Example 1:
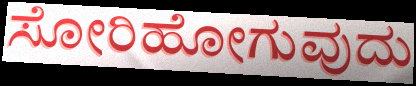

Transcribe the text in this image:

ಸೋರಿಹೋಗುವುದು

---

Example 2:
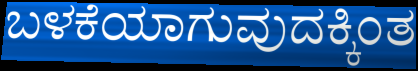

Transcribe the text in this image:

ಬಳಕೆಯಾಗುವುದಕ್ಕಿಂತ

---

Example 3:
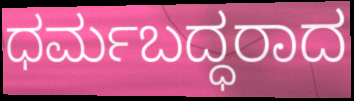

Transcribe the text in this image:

ಧರ್ಮಬದ್ಧರಾದ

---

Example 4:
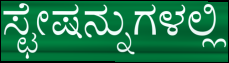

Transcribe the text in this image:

ಸ್ಟೇಷನ್ನುಗಳಲ್ಲಿ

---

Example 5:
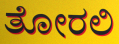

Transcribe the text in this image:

ತೋರಲಿ